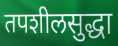
तपशीलसुद्धा